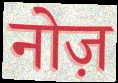
नोज़